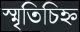
স্মৃতিচিহ্ন